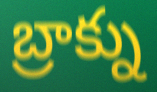
బ్రాక్ను